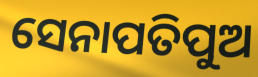
ସେନାପତିପୁଅ